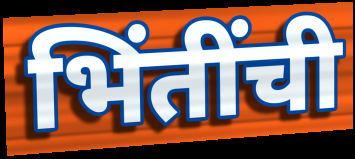
भिंतींची